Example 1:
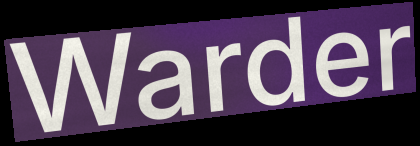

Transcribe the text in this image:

Warder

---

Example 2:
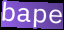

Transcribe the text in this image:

bape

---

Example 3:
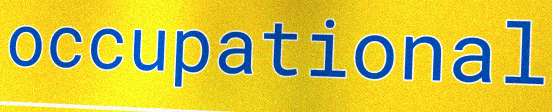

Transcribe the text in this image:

occupational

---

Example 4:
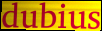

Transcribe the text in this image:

dubius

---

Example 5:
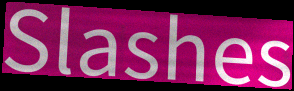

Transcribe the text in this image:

Slashes